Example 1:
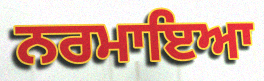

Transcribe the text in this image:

ਨਰਮਾਇਆ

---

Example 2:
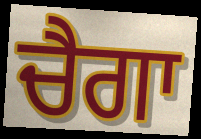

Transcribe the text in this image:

ਚੈਗਾ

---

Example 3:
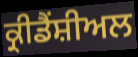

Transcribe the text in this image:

ਕ੍ਰੀਡੈਂਸ਼ੀਅਲ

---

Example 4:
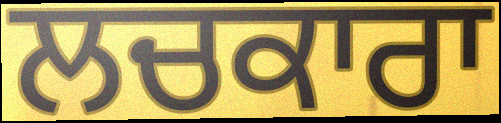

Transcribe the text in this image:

ਲਚਕਾਰਾ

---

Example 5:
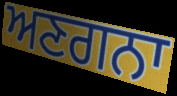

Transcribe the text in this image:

ਅਣਗਨਾ